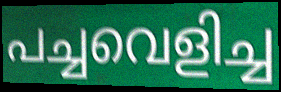
പച്ചവെളിച്ച